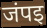
जंपइ